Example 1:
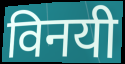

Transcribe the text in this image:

विनयी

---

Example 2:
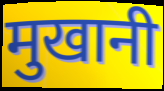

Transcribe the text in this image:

मुखानी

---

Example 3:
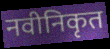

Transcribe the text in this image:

नवीनिकृत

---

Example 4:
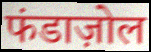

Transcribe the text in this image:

फंडाज़ोल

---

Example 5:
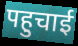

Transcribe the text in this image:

पहुचाई